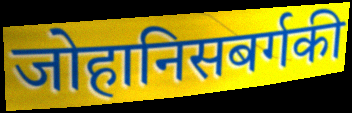
जोहानिसबर्गकी